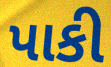
પાકી